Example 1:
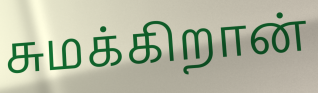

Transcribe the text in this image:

சுமக்கிறான்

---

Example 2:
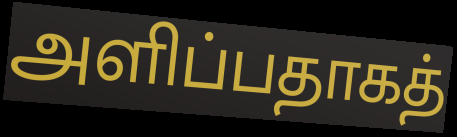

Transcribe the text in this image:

அளிப்பதாகத்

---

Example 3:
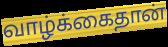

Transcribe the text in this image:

வாழ்க்கைதான்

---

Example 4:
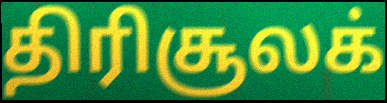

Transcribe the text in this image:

திரிசூலக்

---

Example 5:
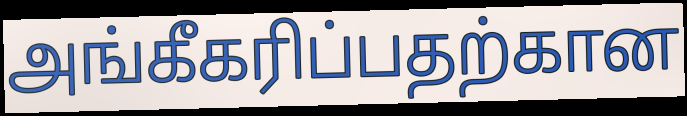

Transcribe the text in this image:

அங்கீகரிப்பதற்கான